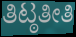
ತಿಟ್ಠತೀತಿ